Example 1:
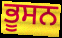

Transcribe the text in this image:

ਭੂਸਨ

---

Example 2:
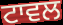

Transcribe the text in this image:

ਟਾਵਲ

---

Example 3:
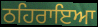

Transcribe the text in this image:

ਠਹਿਰਾਇਆ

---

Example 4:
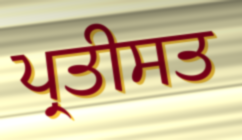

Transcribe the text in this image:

ਪ੍ਰਤੀਸਤ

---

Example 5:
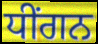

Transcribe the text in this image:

ਧੀਂਗਨ